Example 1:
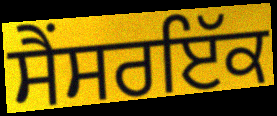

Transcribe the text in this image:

ਸੈਂਸਰਇੱਕ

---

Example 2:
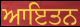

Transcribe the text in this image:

ਆਇਤਨ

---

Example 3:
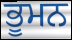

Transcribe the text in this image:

ਭੂਮਨ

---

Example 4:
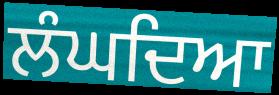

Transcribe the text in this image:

ਲੰਘਦਿਆ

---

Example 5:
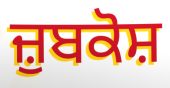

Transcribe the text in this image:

ਜ਼ੁਬਕੋਸ਼